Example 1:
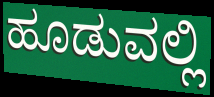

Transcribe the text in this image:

ಹೂಡುವಲ್ಲಿ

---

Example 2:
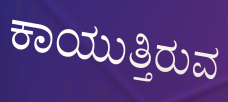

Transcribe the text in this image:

ಕಾಯುತ್ತಿರುವ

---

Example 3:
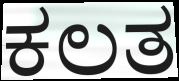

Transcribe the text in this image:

ಕಲತ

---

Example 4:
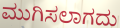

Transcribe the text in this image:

ಮುಗಿಸಲಾಗದು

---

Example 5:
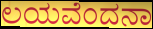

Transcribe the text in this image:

ಲಯವೆಂದನಾ